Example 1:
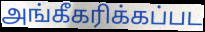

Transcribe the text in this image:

அங்கீகரிக்கப்பட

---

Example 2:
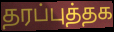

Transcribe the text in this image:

தரப்புத்தக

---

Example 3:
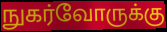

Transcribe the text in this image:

நுகர்வோருக்கு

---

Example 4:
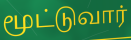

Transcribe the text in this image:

மூட்டுவார்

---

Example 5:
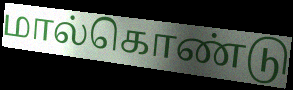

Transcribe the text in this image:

மால்கொண்டு